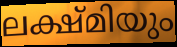
ലക്ഷ്മിയും